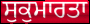
ਸੁਕੁਮਾਰਤਾ